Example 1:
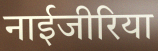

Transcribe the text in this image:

नाईजीरिया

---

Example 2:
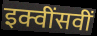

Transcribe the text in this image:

इक्वींसवीं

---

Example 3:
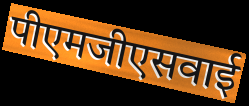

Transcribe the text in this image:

पीएमजीएसवाई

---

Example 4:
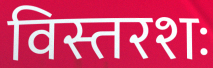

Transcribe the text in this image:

विस्तरशः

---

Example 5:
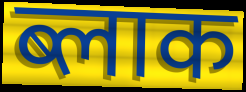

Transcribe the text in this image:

ब्लाक